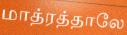
மாத்ரத்தாலே